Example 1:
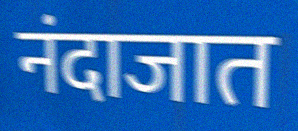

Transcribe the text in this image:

नंदाजात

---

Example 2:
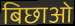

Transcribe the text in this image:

बिछाओ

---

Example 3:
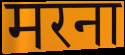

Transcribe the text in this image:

मरना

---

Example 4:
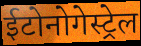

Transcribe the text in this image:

ईटोनोगेस्ट्रेल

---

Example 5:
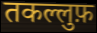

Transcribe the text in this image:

तकल्लुफ़